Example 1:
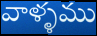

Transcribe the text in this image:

వాళ్ళము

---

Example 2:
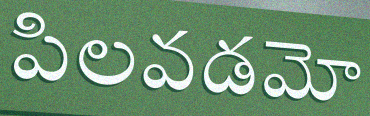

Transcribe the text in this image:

పిలవడమో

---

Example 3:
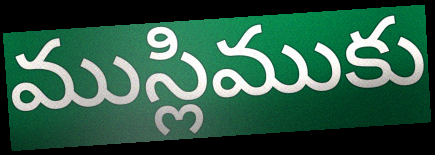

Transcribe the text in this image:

ముస్లిముకు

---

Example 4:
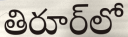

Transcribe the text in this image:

తిరూర్‌లో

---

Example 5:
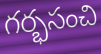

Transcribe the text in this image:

గర్భసంచి